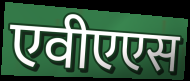
एवीएएस